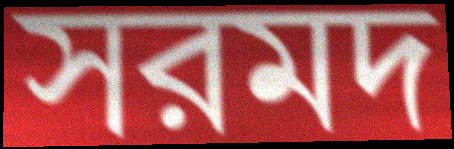
সরমদ